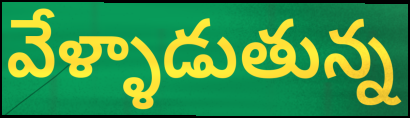
వేళ్ళాడుతున్న